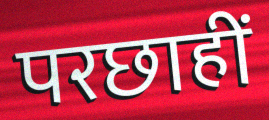
परछाहीं